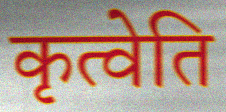
कृत्वेति